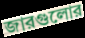
জারগুলোর